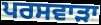
ਪਰਸਵਾੜਾ